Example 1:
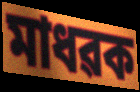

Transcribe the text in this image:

মাধৱক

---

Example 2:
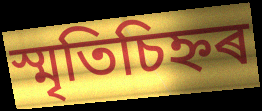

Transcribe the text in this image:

স্মৃতিচিহ্নৰ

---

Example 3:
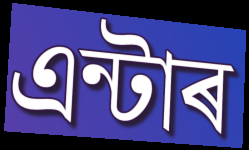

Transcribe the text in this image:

এন্টাৰ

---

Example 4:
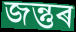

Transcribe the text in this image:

জন্তুৰ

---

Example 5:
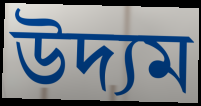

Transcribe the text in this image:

উদ্যম